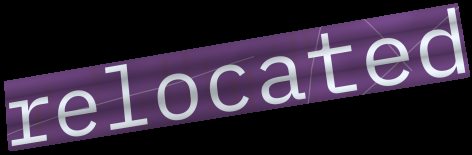
relocated